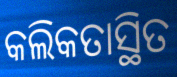
କଲିକତାସ୍ଥିତ